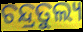
ଚନ୍ଦ୍ରତୁଲ୍ୟ